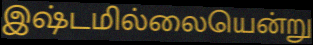
இஷ்டமில்லையென்று